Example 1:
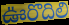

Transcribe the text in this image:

ఊరొదిలి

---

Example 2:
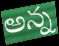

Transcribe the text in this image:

అన్న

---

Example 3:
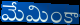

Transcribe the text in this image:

మేమింకా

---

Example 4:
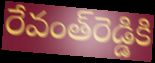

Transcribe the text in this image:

రేవంత్‌రెడ్డికి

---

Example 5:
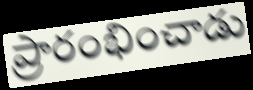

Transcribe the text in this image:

ప్రారంభించాడు